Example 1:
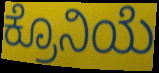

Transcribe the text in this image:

ಕ್ರೊನಿಯೆ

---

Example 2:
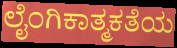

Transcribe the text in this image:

ಲೈಂಗಿಕಾತ್ಮಕತೆಯ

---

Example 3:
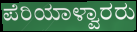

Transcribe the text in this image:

ಪೆರಿಯಾಳ್ವಾರರು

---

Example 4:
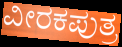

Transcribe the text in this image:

ವೀರಕಪುತ್ರ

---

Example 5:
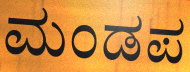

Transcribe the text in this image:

ಮಂಡಪ